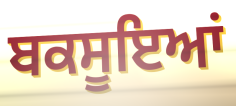
ਬਕਸੂਇਆਂ